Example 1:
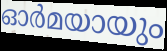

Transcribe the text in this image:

ഓർമയായും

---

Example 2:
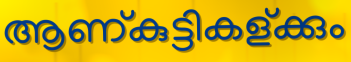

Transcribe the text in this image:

ആണ്കുട്ടികള്ക്കും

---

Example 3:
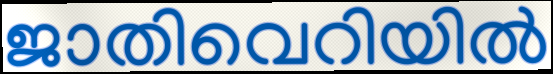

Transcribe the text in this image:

ജാതിവെറിയിൽ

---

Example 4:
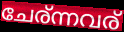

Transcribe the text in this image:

ചേര്ന്നവര്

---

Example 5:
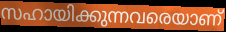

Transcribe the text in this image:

സഹായിക്കുന്നവരെയാണ്